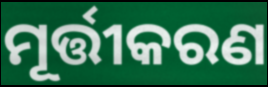
ମୂର୍ତ୍ତୀକରଣ